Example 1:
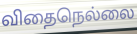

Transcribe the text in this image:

விதைநெல்லை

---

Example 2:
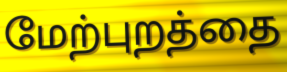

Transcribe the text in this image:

மேற்புறத்தை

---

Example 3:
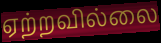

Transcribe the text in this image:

ஏற்றவில்லை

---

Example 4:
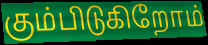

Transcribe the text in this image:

கும்பிடுகிறோம்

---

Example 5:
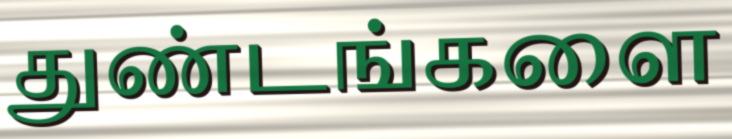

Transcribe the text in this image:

துண்டங்களை